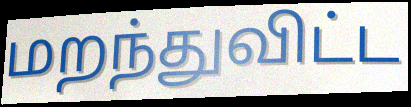
மறந்துவிட்ட